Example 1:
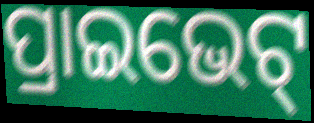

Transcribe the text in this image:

ପ୍ରାଇଭେଟ୍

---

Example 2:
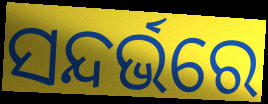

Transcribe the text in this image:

ସନ୍ଦର୍ଭରେ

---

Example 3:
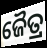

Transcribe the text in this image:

ଜୈତ୍ର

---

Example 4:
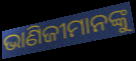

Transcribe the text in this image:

ଭାଣିଜୀମାନଙ୍କୁ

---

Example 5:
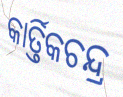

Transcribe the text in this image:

କାର୍ତ୍ତିକଚନ୍ଦ୍ର